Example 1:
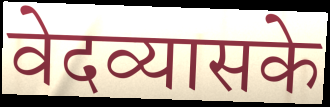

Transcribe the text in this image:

वेदव्यासके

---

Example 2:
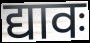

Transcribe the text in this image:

द्यावः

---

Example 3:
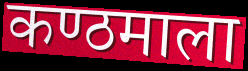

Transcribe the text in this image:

कण्ठमाला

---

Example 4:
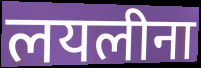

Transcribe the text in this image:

लयलीना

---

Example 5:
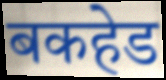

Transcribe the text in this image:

बकहेड